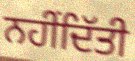
ਨਹੀਂਦਿੱਤੀ